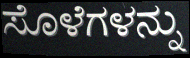
ಸೊಳೆಗಳನ್ನು